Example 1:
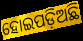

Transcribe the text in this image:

ହୋଇପଡ଼ିଅଛି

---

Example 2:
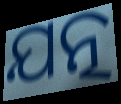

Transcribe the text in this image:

ଯତ୍ନ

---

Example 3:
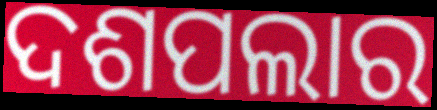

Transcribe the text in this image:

ଦଶପଲାର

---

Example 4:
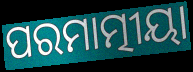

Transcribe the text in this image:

ପରମାତ୍ମୀୟା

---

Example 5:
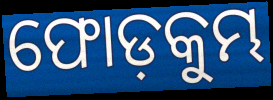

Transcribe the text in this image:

ଫୋଡ଼କୁମ୍ଭ